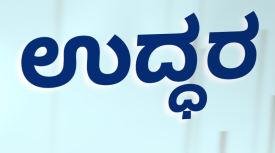
ಉದ್ಧರ